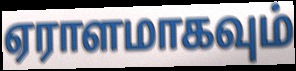
ஏராளமாகவும்